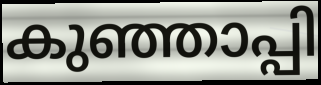
കുഞ്ഞാപ്പി